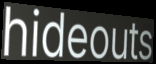
hideouts